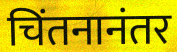
चिंतनानंतर